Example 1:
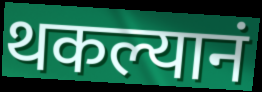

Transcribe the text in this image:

थकल्यानं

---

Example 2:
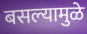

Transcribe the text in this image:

बसल्यामुळे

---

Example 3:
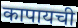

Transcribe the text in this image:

कापायची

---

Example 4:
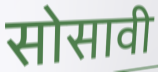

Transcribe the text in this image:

सोसावी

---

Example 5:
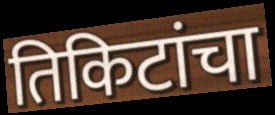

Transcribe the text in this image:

तिकिटांचा